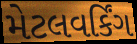
મેટલવર્કિંગ